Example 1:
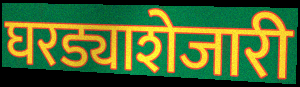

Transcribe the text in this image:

घरड्याशेजारी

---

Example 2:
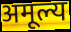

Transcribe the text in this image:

अमूल्य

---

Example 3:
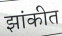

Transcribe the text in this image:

झांकीत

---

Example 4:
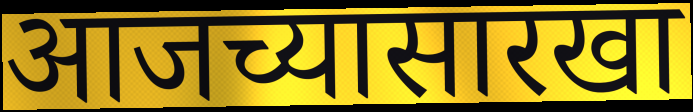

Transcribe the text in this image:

आजच्यासारखा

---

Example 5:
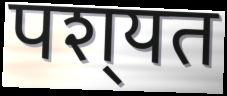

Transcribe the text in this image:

पश्यत